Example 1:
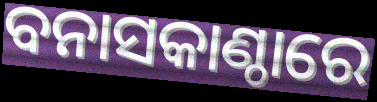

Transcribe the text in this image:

ବନାସକାଣ୍ଠାରେ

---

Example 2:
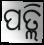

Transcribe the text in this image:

ପତ୍ଲି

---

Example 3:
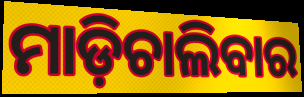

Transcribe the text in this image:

ମାଡ଼ିଚାଲିବାର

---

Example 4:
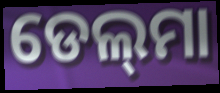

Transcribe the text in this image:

ଡେଲ୍‍ମା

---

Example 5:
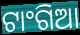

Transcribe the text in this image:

ଟାଂଗିଆ